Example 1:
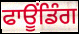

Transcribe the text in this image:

ਫਾਊਂਡਿੰਗ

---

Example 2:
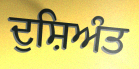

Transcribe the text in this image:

ਦੁਸ਼ਿਅੰਤ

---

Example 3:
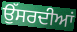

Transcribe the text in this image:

ਉੱਸਰਦੀਆਂ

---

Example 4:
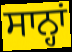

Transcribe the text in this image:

ਸਾਨ੍ਹਾਂ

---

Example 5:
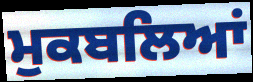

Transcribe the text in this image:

ਮੁਕਬਲਿਆਂ